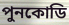
পুনকোডি